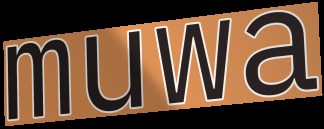
muwa